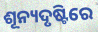
ଶୂନ୍ୟଦୃଷ୍ଟିରେ